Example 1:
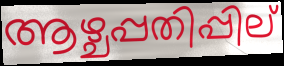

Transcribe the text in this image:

ആഴ്ചപ്പതിപ്പില്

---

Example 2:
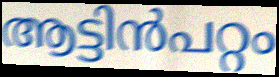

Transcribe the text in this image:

ആട്ടിൻപറ്റം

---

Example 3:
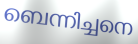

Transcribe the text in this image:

ബെന്നിച്ചനെ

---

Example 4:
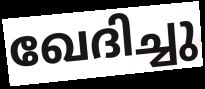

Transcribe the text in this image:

ഖേദിച്ചു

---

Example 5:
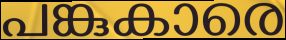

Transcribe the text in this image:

പങ്കുകാരെ